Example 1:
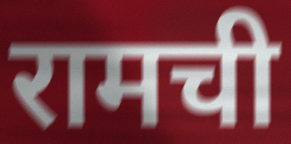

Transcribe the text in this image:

रामची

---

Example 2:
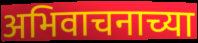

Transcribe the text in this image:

अभिवाचनाच्या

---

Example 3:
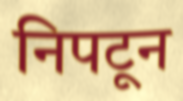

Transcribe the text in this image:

निपटून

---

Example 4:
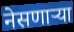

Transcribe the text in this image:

नेसणाऱ्या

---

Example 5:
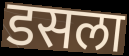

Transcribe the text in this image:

डसला